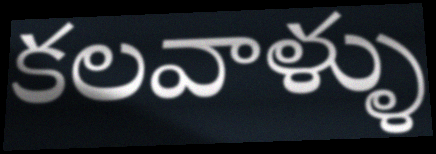
కలవాళ్ళు